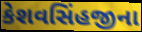
કેશવસિંહજીના